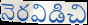
నెరవిడిచి